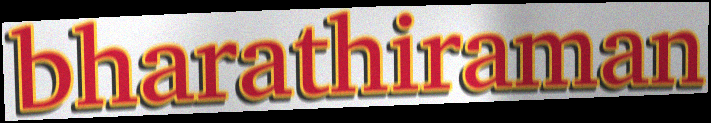
bharathiraman